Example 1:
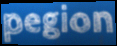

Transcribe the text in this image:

pegion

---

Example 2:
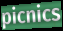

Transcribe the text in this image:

picnics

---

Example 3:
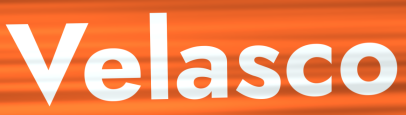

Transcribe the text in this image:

Velasco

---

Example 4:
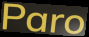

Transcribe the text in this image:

Paro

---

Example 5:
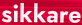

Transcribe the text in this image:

sikkare